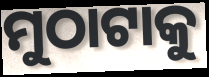
ମୁଠାଟାକୁ